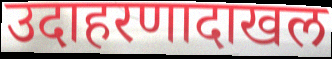
उदाहरणादाखल